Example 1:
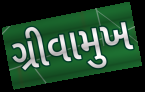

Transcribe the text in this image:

ગ્રીવામુખ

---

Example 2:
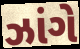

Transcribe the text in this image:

ઝાંગે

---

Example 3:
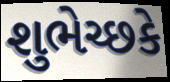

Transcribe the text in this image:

શુભેચ્છકે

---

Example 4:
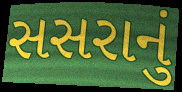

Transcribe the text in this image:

સસરાનું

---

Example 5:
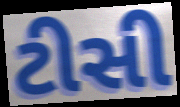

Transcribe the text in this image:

ટીસી